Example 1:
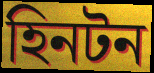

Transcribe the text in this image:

হিনটন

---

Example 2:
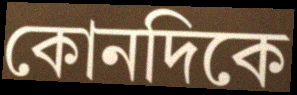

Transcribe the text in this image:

কোনদিকে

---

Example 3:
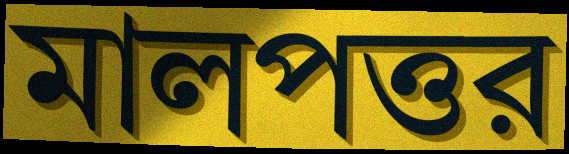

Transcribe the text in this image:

মালপত্তর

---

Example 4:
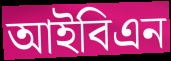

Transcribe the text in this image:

আইবিএন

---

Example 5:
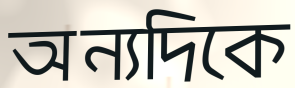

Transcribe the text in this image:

অন্যদিকে